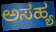
ಅಸಹ್ಯ